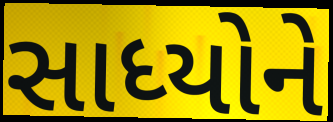
સાધ્યોને